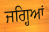
ਜਗ੍ਹਿਆਂ